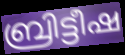
ബ്രിട്ടീഷ